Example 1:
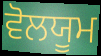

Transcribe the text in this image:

ਵੋਲਯੂਮ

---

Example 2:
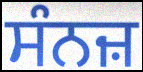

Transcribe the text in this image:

ਸੰਨਜ਼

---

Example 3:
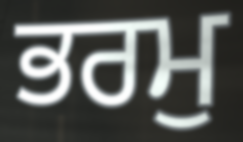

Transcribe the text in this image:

ਭਰਮੁ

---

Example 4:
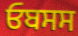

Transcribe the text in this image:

ਓਬਸਸ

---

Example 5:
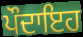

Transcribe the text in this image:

ਪੌਦਾਇਹ